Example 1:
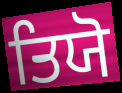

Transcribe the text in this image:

ਤਿਯੋ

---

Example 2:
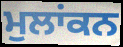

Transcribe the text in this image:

ਮੁਲਾਂਕਨ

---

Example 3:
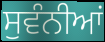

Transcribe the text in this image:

ਸੁਵੰਨੀਆਂ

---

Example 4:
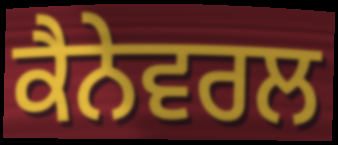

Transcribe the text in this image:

ਕੈਨੇਵਰਲ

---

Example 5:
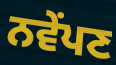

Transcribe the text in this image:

ਨਵੇਂਪਣ